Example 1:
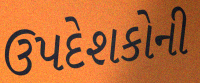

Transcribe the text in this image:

ઉપદેશકોની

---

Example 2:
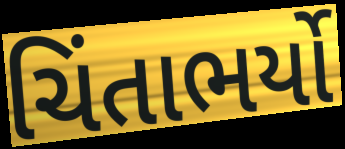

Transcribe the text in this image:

ચિંતાભર્યો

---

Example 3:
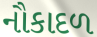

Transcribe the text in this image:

નૌકાદળ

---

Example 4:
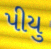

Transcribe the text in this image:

પીયુ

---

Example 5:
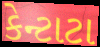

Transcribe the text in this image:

કેન્ટાટા